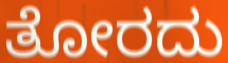
ತೋರದು